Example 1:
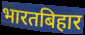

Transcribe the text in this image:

भारतबिहार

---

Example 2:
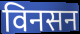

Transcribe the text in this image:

विनसन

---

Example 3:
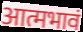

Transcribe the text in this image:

आत्मभावं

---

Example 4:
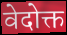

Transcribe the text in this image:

वेदोक्त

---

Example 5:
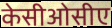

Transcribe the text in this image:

केसीओसीए